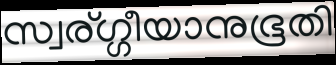
സ്വര്ഗ്ഗീയാനുഭൂതി